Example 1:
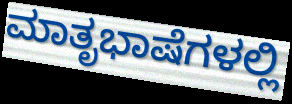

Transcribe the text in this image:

ಮಾತೃಭಾಷೆಗಳಲ್ಲಿ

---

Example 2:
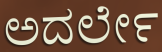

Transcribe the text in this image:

ಅದರ್ಲೇ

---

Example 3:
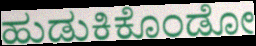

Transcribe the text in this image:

ಹುಡುಕಿಕೊಂಡೋ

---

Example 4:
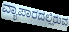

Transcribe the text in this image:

ವ್ಯಾಪಾರದಲ್ಲಿರುವ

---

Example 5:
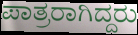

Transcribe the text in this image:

ಪಾತ್ರರಾಗಿದ್ದರು